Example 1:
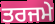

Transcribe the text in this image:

ਤਰਜਮੇ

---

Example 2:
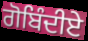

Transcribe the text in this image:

ਗੋਬਿੰਦੀਏ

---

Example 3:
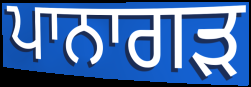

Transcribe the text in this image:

ਪਾਨਾਗੜ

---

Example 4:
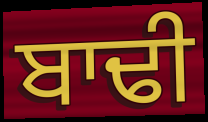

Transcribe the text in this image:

ਬਾਢੀ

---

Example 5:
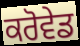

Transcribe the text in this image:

ਕਰੋਵੇਡ